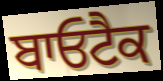
ਬਾਓਟੈਕ